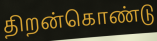
திறன்கொண்டு